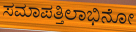
ಸಮಾಪತ್ತಿಲಾಭಿನೋ